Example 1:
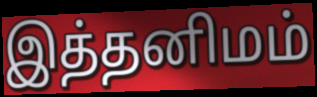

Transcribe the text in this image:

இத்தனிமம்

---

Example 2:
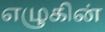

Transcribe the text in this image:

எழுகின்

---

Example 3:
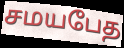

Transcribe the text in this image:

சமயபேத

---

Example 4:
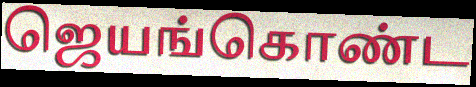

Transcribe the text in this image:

ஜெயங்கொண்ட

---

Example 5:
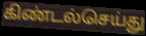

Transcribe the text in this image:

கிண்டல்செய்து